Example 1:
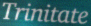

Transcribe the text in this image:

Trinitate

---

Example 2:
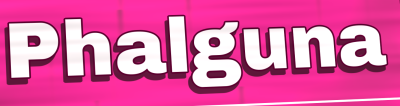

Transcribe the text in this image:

Phalguna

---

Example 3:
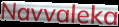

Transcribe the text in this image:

Navvaleka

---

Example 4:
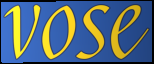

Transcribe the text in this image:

vose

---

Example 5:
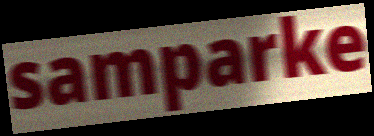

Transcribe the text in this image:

samparke